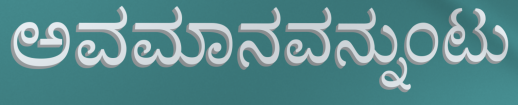
ಅವಮಾನವನ್ನುಂಟು